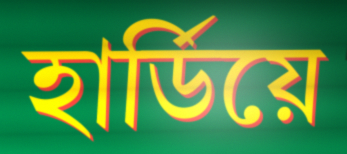
হাৰ্ডিয়ে